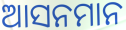
ଆସନମାନ